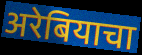
अरेबियाचा